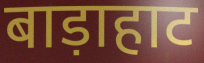
बाड़ाहाट